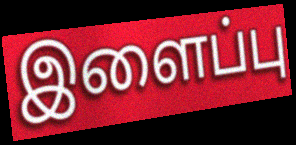
இளைப்பு